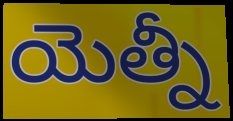
యెత్నీ